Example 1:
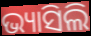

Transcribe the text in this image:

ଭ୍ୟାସିଲି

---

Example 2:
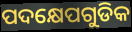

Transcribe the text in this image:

ପଦକ୍ଷେପଗୁଡିକ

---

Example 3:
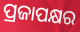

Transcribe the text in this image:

ପ୍ରଜାପକ୍ଷର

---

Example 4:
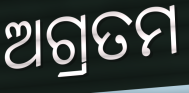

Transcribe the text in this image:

ଅଗ୍ରତମ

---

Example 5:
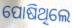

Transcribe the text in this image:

ପୋଷିଥିଲେ